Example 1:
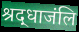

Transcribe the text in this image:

श्रद्धाजंलि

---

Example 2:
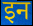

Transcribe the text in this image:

इन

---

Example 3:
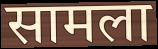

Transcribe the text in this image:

सामला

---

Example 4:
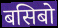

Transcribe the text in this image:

बसिबो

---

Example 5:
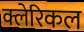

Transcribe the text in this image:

क्लेरिकल